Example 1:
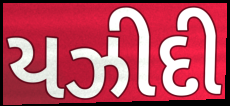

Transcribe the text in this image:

યઝીદી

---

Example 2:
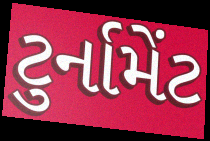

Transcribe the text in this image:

ટુર્નામેંટ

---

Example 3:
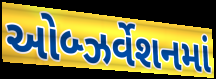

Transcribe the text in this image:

ઓબ્ઝર્વેશનમાં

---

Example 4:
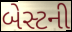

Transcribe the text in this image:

બેસ્ટની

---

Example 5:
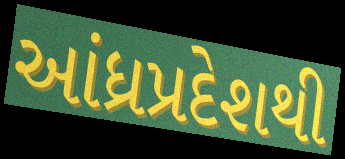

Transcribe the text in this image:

આંધ્રપ્રદેશથી